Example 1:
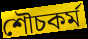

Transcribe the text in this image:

শৌচকর্ম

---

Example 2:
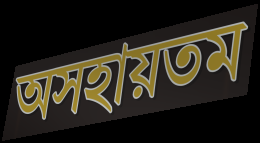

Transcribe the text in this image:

অসহায়তম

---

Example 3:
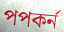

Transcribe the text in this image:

পপকর্ন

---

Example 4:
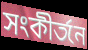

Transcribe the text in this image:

সংকীর্তনে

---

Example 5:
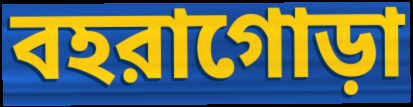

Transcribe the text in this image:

বহরাগোড়া